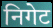
निगेट